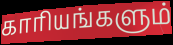
காரியங்களும்